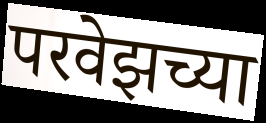
परवेझच्या